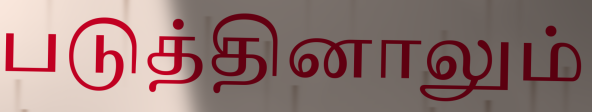
படுத்தினாலும்